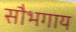
सौभगाय